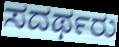
ಸದರ್ಥರು